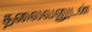
தலைவனுடன்